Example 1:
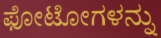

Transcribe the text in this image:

ಫೋಟೋಗಳನ್ನು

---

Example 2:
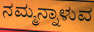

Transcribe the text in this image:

ನಮ್ಮನ್ನಾಳುವ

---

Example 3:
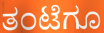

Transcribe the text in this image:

ತಂಟೆಗೂ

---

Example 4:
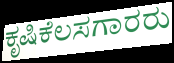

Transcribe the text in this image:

ಕೃಷಿಕೆಲಸಗಾರರು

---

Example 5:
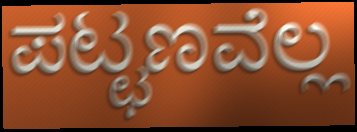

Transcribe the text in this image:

ಪಟ್ಟಣವೆಲ್ಲ